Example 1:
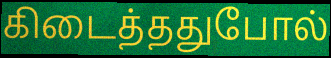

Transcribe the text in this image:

கிடைத்ததுபோல்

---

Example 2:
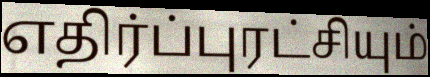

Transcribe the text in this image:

எதிர்ப்புரட்சியும்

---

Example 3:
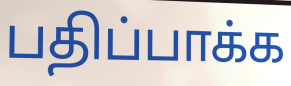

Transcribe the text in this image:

பதிப்பாக்க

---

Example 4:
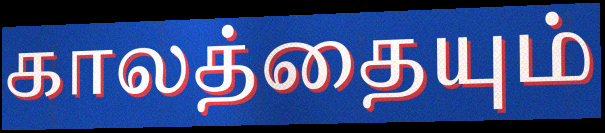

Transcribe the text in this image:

காலத்தையும்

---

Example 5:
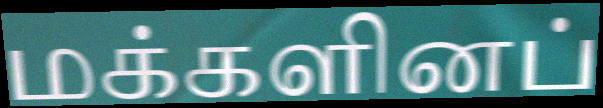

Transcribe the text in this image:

மக்களினப்